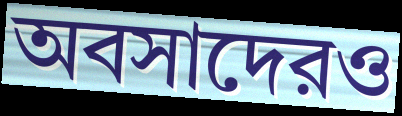
অবসাদেরও